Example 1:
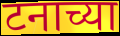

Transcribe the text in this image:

टनाच्या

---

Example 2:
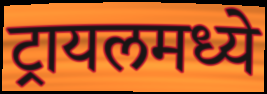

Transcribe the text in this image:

ट्रायलमध्ये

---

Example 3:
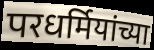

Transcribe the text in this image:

परधर्मियांच्या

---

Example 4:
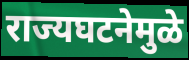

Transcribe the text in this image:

राज्यघटनेमुळे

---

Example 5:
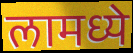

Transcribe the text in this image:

लामध्ये